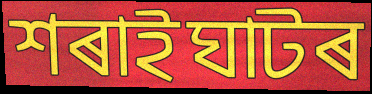
শৰাইঘাটৰ